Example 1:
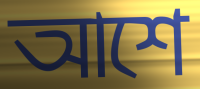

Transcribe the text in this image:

আশে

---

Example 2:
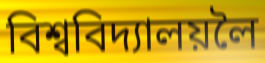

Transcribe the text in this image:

বিশ্ববিদ্যালয়লৈ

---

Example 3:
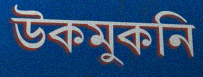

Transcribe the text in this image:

উকমুকনি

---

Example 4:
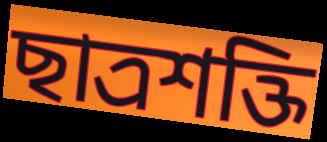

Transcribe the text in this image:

ছাত্ৰশক্তি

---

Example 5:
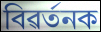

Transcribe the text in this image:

বিৱৰ্তনক